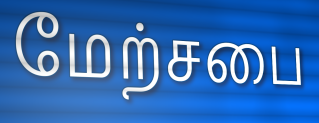
மேற்சபை